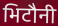
भिटौनी